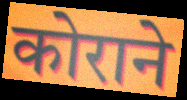
कोराने